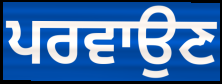
ਪਰਵਾਉਣ